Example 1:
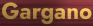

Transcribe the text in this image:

Gargano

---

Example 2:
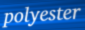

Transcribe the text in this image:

polyester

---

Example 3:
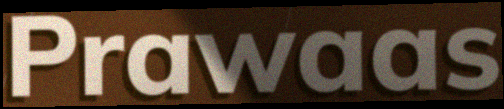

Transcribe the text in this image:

Prawaas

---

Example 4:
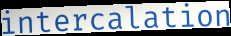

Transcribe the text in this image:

intercalation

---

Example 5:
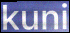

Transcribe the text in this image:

kuni